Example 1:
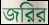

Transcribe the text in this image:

জরির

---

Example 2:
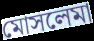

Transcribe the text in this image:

মোসলেমা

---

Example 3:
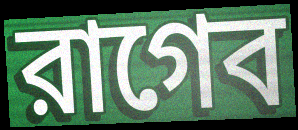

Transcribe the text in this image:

রাগেব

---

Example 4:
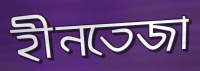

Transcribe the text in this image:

হীনতেজা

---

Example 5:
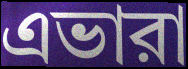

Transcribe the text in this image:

এভারা